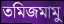
তমিজমামু